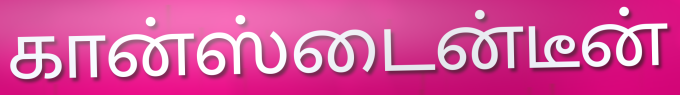
கான்ஸ்டைன்டீன்